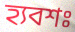
হ্যবশঃ